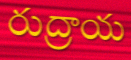
రుద్రాయ